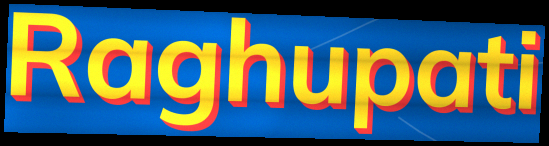
Raghupati